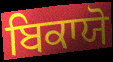
ਬਿਕਾਯੋ